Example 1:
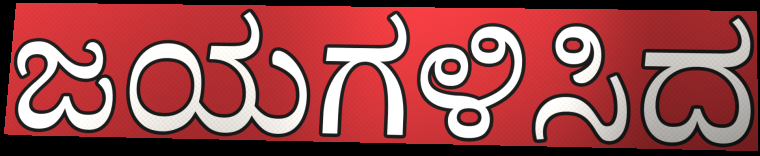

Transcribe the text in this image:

ಜಯಗಳಿಸಿದ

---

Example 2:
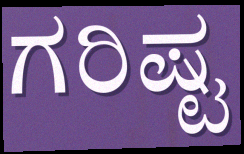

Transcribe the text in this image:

ಗರಿಷ್ಟ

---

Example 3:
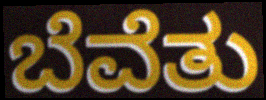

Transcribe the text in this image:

ಬೆವೆತು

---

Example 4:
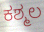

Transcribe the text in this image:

ಕಶ್ಮಲ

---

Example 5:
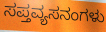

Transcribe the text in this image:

ಸಪ್ತವ್ಯಸನಂಗಳು